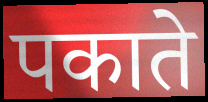
पकाते